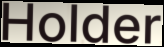
Holder